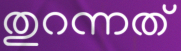
തുറന്നത്